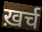
ख़र्च